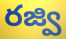
రజ్వి